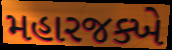
મહારજક્ખે